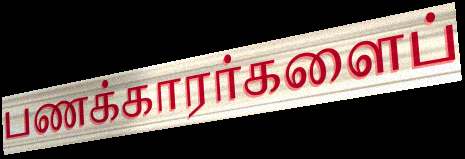
பணக்காரர்களைப்